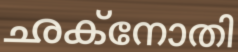
ഛക്നോതി